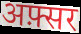
अफ़्सर